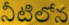
నీటిలోన